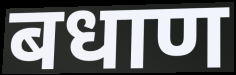
बधाण